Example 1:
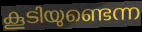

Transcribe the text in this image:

കൂടിയുണ്ടെന്ന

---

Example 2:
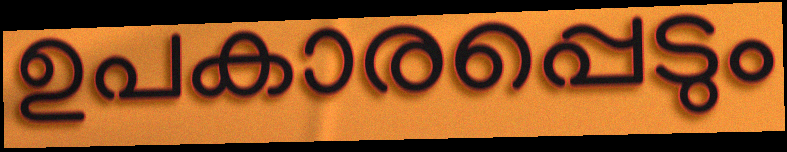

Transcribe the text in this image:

ഉപകാരപ്പെടും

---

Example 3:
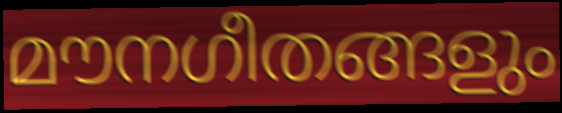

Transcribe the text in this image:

മൗനഗീതങ്ങളും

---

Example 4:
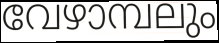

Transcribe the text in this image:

വേഴാമ്പലും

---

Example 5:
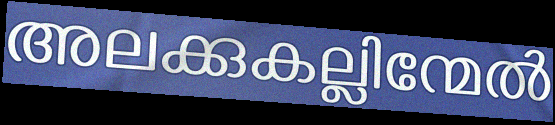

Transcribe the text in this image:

അലക്കുകല്ലിന്മേൽ